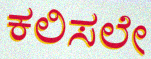
ಕಲಿಸಲೇ